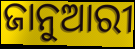
ଜାନୁଆରୀ